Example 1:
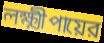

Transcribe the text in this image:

লক্ষ্মীপায়ের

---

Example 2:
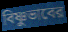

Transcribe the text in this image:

বিষ্ণুভাবের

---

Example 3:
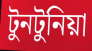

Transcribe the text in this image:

টুনটুনিয়া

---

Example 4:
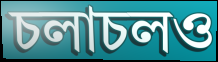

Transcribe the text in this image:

চলাচলও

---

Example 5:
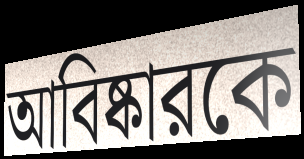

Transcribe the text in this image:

আবিষ্কারকে